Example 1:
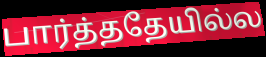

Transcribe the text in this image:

பார்த்ததேயில்ல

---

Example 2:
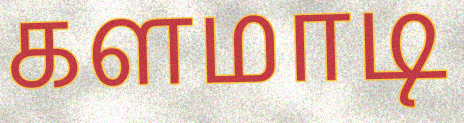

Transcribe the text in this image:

களமாடி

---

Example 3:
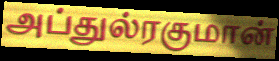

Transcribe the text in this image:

அப்துல்ரகுமான்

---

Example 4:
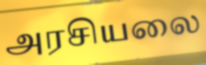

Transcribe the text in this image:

அரசியலை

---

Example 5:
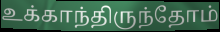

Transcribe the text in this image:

உக்காந்திருந்தோம்